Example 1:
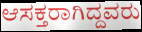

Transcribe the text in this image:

ಆಸಕ್ತರಾಗಿದ್ದವರು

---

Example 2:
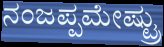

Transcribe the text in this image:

ನಂಜಪ್ಪಮೇಷ್ಟ್ರು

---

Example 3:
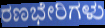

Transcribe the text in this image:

ರಣಭೇರಿಗಳು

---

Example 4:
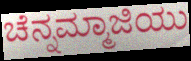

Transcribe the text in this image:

ಚೆನ್ನಮ್ಮಾಜಿಯು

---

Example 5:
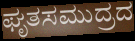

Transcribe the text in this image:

ಘೃತಸಮುದ್ರದ